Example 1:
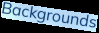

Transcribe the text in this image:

Backgrounds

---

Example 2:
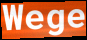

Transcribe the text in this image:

Wege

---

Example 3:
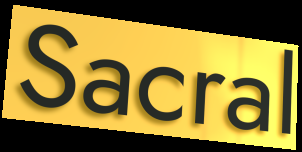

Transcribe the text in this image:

Sacral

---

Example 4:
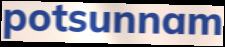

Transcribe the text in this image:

potsunnam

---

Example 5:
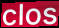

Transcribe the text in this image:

clos